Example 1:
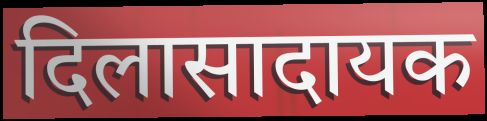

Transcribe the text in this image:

दिलासादायक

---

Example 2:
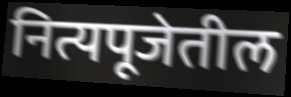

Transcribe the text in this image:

नित्यपूजेतील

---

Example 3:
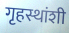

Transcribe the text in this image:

गृहस्थांशी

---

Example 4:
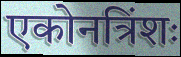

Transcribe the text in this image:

एकोनत्रिंशः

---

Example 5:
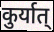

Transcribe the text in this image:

कुर्यात्